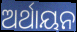
ଅର୍ଥାୟନ